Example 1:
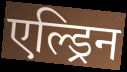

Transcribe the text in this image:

एल्ड्रिन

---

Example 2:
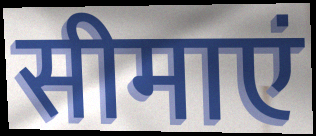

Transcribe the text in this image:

सीमाएं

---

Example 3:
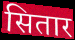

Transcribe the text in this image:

सितार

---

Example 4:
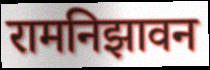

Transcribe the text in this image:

रामनिझावन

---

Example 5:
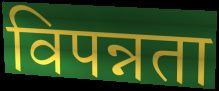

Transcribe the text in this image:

विपन्नता